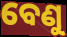
ବେଣୁ